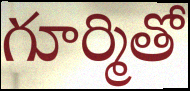
గూర్మితో